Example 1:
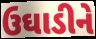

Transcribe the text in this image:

ઉઘાડીને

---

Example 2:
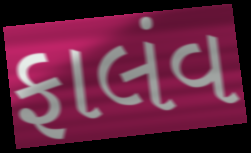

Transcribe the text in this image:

ફાલંવ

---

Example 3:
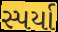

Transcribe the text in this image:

સ્પર્યા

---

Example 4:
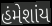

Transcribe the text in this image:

હંમેશાંય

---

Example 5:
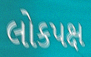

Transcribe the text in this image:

લોકપક્ષ